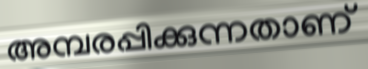
അമ്പരപ്പിക്കുന്നതാണ്